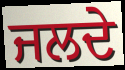
ਜਲਦੇ